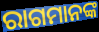
ରାଗମାନଙ୍କ